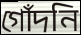
গোঁদনি